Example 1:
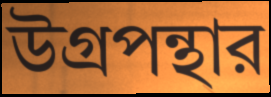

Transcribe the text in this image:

উগ্রপন্থার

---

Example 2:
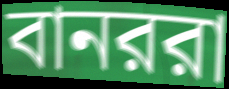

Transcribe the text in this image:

বানররা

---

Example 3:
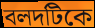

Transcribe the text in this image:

বলদটিকে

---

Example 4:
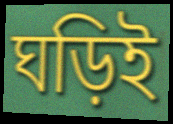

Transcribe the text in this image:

ঘড়িই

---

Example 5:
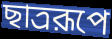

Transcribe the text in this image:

ছাত্ররূপে